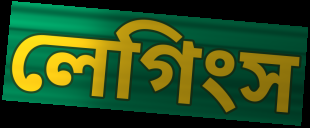
লেগিংস